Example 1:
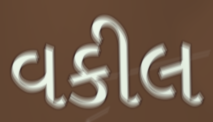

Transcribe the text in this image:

વકીલ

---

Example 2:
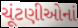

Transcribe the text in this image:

ચૂંટણીઓનાં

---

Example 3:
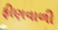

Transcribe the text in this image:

ફીણવાળી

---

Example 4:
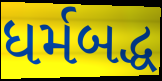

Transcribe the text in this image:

ધર્મબદ્ધ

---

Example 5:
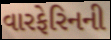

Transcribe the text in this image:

વારફેરિનની